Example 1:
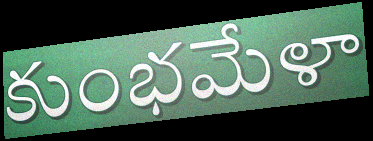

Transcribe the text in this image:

కుంభమేళా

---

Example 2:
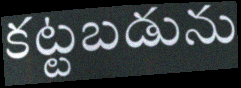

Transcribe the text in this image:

కట్టబడును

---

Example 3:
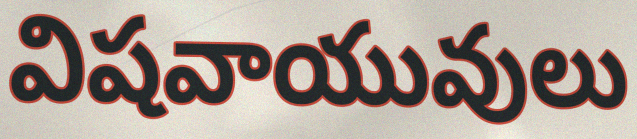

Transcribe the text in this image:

విషవాయువులు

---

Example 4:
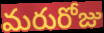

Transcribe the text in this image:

మరురోజు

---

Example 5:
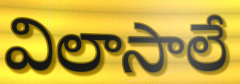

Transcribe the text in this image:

విలాసాలే